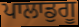
ਪਾਲਾਡੁਗੂ